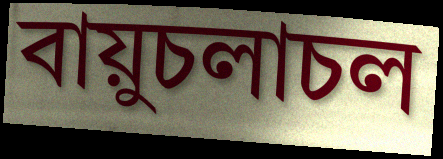
বায়ুচলাচল